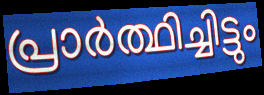
പ്രാർത്ഥിച്ചിട്ടും